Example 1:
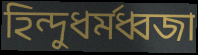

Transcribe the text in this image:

হিন্দুধর্মধ্বজা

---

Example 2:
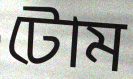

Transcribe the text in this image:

টোম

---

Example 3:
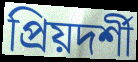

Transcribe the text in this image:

প্রিয়দর্শী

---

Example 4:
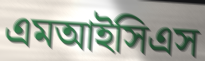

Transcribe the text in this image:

এমআইসিএস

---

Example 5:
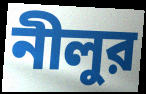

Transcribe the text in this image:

নীলুর